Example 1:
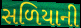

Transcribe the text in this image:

સળિયાની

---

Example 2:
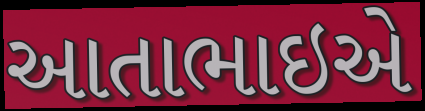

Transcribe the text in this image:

આતાભાઇએ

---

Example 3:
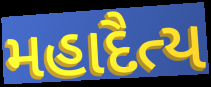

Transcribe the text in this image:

મહાદૈત્ય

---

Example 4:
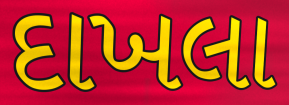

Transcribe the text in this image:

દાખલા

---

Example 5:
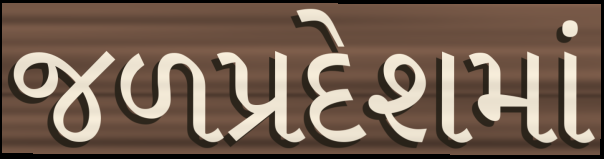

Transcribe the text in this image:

જળપ્રદેશમાં